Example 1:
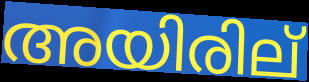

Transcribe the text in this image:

അയിരില്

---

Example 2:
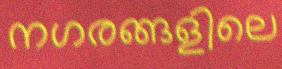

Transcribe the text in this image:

നഗരങ്ങളിലെ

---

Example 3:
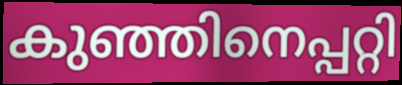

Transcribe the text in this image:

കുഞ്ഞിനെപ്പറ്റി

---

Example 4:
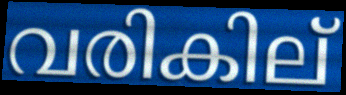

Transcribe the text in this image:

വരികില്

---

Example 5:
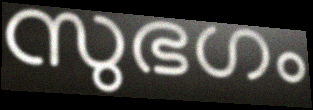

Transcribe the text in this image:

സുഭഗം